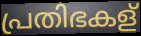
പ്രതിഭകള്